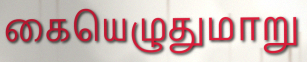
கையெழுதுமாறு